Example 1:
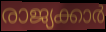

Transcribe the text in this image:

രാജ്യക്കാർ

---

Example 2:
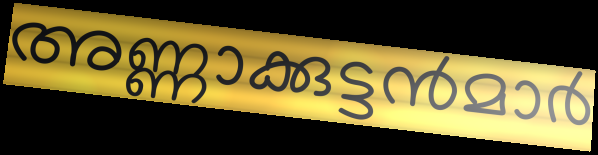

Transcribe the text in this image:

അണ്ണാക്കുട്ടൻമാർ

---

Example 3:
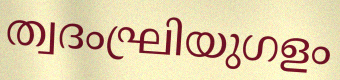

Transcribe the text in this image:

ത്വദംഘ്രിയുഗളം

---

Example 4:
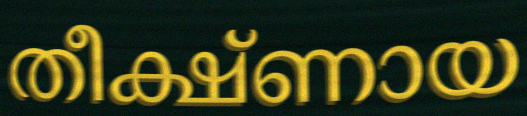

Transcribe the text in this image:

തീക്ഷ്ണായ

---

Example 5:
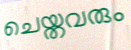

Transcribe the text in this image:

ചെയ്തവരും